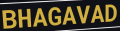
BHAGAVAD